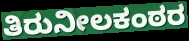
ತಿರುನೀಲಕಂಠರ